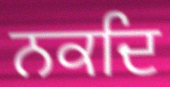
ਨਕਦਿ